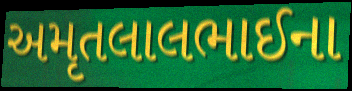
અમૃતલાલભાઈના